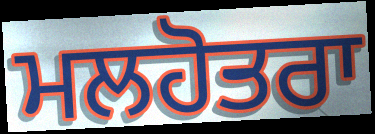
ਮਲਹੋਤਰਾ